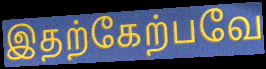
இதற்கேற்பவே